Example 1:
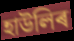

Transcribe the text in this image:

হাউলিৰ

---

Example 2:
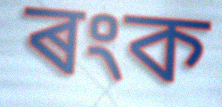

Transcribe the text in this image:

ৰংক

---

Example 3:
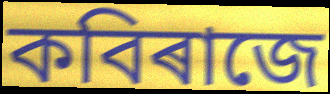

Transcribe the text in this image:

কবিৰাজে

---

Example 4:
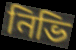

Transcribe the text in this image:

নিভি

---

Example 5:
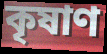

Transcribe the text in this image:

কৃষাণ